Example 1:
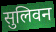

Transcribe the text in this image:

सुलिवन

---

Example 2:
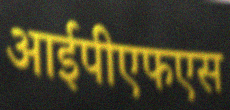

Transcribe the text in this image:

आईपीएफएस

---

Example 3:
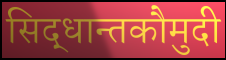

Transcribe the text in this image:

सिद्धान्तकौमुदी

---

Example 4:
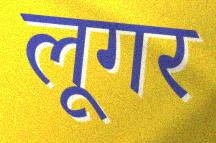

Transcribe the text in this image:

लूगर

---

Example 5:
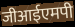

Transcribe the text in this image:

जीआईएमपी